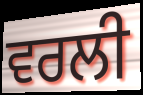
ਵਰਲੀ